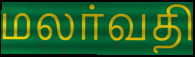
மலர்வதி